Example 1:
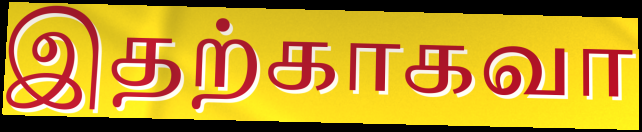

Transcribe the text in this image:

இதற்காகவா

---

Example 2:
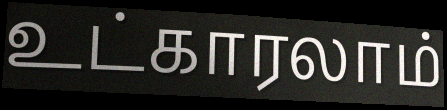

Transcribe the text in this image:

உட்காரலாம்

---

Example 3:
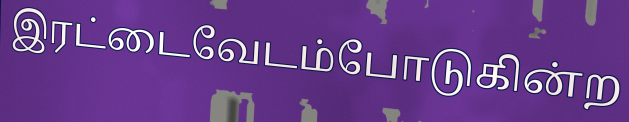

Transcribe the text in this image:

இரட்டைவேடம்போடுகின்ற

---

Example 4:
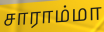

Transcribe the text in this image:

சாராம்மா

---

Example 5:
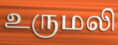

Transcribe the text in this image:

உருமலி